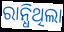
ରାନ୍ଧିଥିଲା